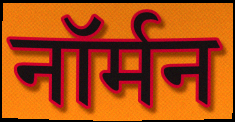
नॉर्मन